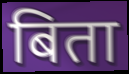
बिता